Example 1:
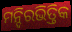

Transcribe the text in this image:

ମନ୍ଦିରଭିତ୍ତିକ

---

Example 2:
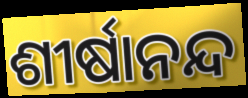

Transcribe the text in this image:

ଶୀର୍ଷାନନ୍ଦ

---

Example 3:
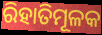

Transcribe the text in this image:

ରିହାତିମୂଳକ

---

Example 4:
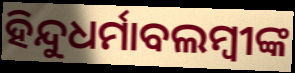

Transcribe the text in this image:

ହିନ୍ଦୁଧର୍ମାବଲମ୍ବୀଙ୍କ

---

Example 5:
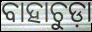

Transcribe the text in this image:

ବାହାଚୁଡ଼ା